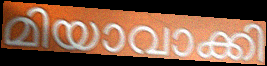
മിയാവാക്കി